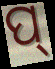
ପ୍